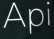
Api